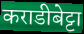
कराडीबेट्टा